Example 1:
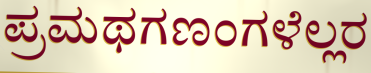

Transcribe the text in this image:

ಪ್ರಮಥಗಣಂಗಳೆಲ್ಲರ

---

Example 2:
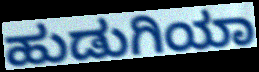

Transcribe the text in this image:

ಹುಡುಗಿಯಾ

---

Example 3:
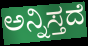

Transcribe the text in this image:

ಅನ್ನಿಸ್ತದೆ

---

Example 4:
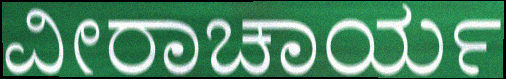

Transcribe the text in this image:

ವೀರಾಚಾರ್ಯ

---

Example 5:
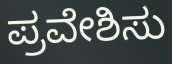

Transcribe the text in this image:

ಪ್ರವೇಶಿಸು